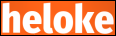
heloke